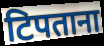
टिपताना